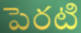
పెరటి